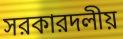
সরকারদলীয়